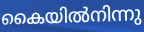
കൈയിൽനിന്നു